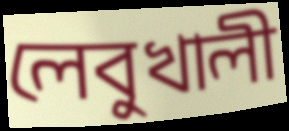
লেবুখালী